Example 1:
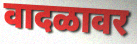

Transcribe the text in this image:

वादळावर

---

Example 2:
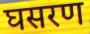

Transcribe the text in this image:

घसरण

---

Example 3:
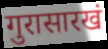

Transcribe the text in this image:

गुरासारखं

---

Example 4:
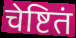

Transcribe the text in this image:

चेष्टितं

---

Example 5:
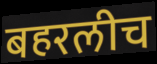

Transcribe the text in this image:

बहरलीच